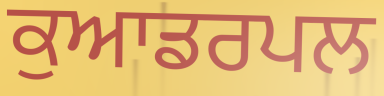
ਕੁਆਡਰਪਲ